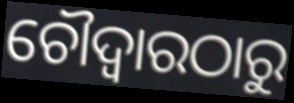
ଚୌଦ୍ୱାରଠାରୁ